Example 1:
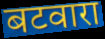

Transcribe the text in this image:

बटवारा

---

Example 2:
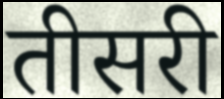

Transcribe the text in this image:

तीसरी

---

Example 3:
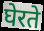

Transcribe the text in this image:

घेरते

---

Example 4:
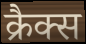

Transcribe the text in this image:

क्रैक्स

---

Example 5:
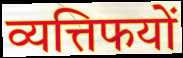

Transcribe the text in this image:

व्यत्तिफयों